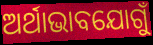
ଅର୍ଥାଭାବଯୋଗୁଁ